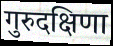
गुरुदक्षिणा